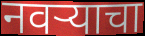
नवऱ्याचा